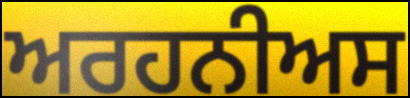
ਅਰਹਨੀਅਸ